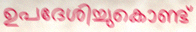
ഉപദേശിച്ചുകൊണ്ട്